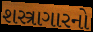
શસ્ત્રાગારનો